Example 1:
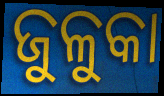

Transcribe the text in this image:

ଜୁଳୁକା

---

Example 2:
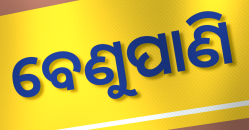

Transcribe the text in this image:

ବେଣୁପାଣି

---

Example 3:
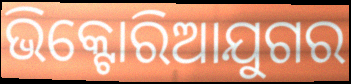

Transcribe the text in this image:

ଭିକ୍ଟୋରିଆଯୁଗର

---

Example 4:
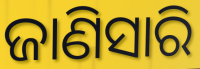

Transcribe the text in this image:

ଜାଣିସାରି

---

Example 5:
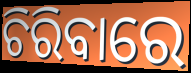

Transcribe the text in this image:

ଚିରିବାରେ